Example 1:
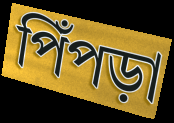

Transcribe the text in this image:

পিঁপড়া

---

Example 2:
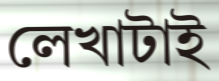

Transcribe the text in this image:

লেখাটাই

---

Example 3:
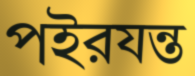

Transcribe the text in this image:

পইরযন্ত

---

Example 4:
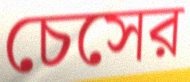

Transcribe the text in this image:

চেসের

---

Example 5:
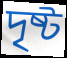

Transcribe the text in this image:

দৃষ্ট